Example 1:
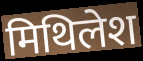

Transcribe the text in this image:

मिथिलेश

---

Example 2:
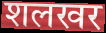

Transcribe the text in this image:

शलखर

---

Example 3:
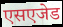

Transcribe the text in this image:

एसएजेड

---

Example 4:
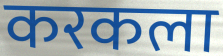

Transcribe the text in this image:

करकला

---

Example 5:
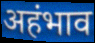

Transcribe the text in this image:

अहंभाव